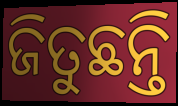
ଜିତୁଛନ୍ତି